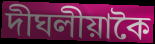
দীঘলীয়াকৈ